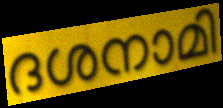
ദശനാമി